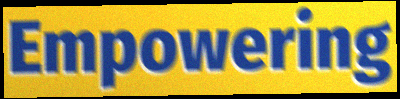
Empowering